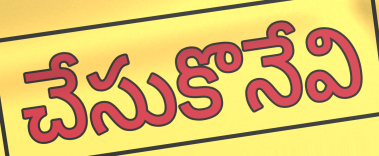
చేసుకొనేవి